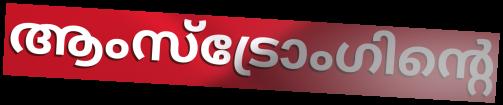
ആംസ്ട്രോംഗിന്റെ